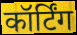
कॉर्टिंग